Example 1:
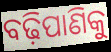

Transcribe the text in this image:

ବଢ଼ିପାଣିକୁ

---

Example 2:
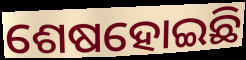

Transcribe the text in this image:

ଶେଷହୋଇଛି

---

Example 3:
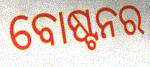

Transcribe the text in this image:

ବୋଷ୍ଟନର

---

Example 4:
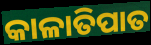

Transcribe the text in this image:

କାଳାତିପାତ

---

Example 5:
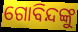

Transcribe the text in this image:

ଗୋବିନ୍ଦଙ୍କୁ